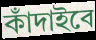
কাঁদাইবে